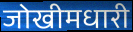
जोखीमधारी